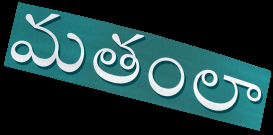
మతంలా